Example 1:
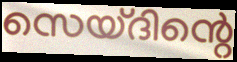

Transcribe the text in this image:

സെയ്ദിന്റെ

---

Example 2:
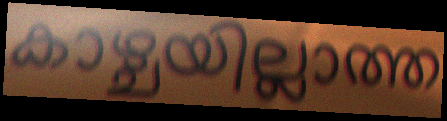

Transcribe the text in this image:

കാഴ്ചയില്ലാത്ത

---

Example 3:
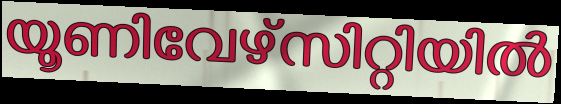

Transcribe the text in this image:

യൂണിവേഴ്സിറ്റിയിൽ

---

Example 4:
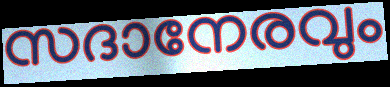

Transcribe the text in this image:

സദാനേരവും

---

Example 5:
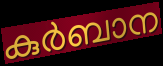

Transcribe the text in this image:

കുർബാന